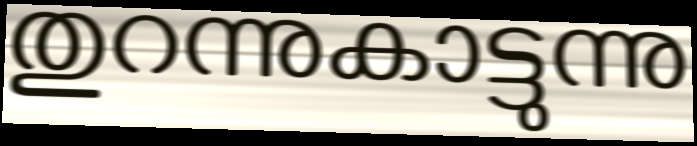
തുറന്നുകാട്ടുന്നു